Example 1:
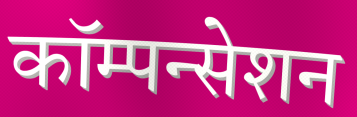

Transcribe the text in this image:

कॉम्पन्सेशन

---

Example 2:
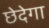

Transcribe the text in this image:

छेदेगा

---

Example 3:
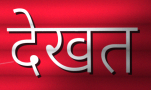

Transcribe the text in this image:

देखत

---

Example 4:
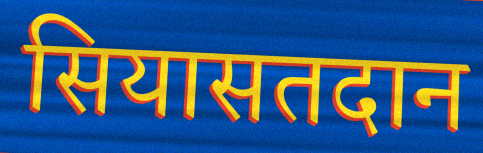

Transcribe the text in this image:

सियासतदान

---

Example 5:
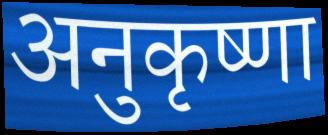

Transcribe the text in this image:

अनुकृष्णा